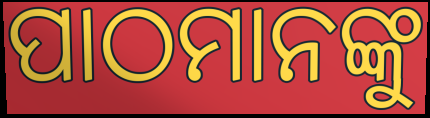
ପାଠମାନଙ୍କୁ